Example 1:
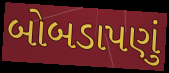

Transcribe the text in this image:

બોબડાપણું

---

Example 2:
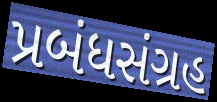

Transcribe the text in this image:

પ્રબંધસંગ્રહ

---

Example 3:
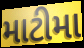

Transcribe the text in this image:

માટીમા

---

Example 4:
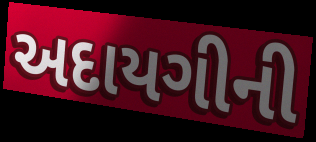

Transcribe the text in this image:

અદાયગીની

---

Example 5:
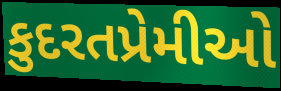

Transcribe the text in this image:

કુદરતપ્રેમીઓ